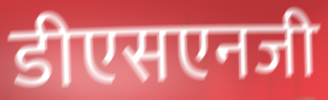
डीएसएनजी